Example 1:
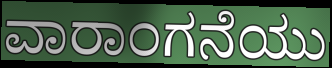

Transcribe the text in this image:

ವಾರಾಂಗನೆಯು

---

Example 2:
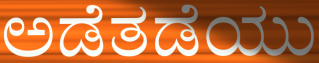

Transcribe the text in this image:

ಅಡೆತಡೆಯು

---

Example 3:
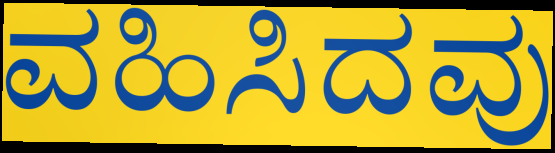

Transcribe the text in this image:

ವಹಿಸಿದವು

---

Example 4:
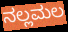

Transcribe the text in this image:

ನಲ್ಲಮಲ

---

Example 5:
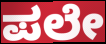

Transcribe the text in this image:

ಪಲೇ